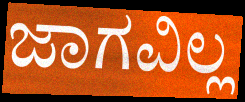
ಜಾಗವಿಲ್ಲ